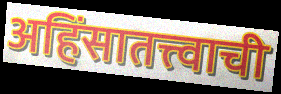
अहिंसातत्त्वाची